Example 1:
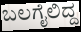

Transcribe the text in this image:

ಬಲಗೈಲಿದ್ದ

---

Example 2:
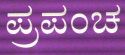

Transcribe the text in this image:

ಪ್ರಪಂಚ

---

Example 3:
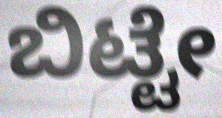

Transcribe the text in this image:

ಬಿಟ್ಟೇ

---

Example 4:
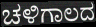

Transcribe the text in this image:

ಚಳಿಗಾಲದ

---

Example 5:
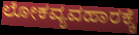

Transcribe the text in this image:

ಲೋಕವ್ಯವಹಾರಕ್ಕೆ